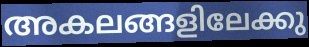
അകലങ്ങളിലേക്കു